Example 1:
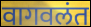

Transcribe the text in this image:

वागवलंत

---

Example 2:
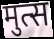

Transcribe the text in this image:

मुत्स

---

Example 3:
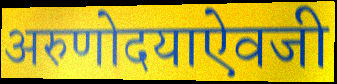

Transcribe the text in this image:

अरुणोदयाऐवजी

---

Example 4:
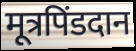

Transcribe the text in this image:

मूत्रपिंडदान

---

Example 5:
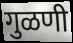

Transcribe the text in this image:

गुळणी